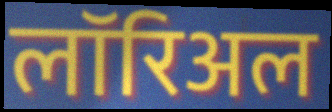
लॉरिअल